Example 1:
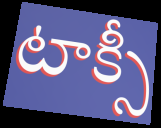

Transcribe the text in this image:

టాక్సీ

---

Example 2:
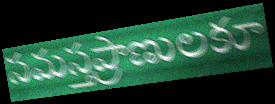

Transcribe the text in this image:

సమస్తప్రాణులకూ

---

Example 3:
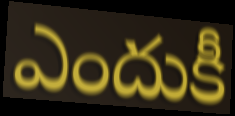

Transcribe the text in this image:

ఎందుకీ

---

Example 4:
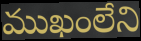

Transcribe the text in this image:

ముఖంలేని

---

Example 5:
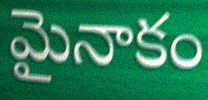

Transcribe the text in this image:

మైనాకం